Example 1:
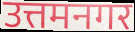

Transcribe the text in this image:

उत्तमनगर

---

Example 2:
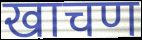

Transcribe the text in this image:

खाचण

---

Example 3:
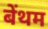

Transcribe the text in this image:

बेंथम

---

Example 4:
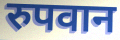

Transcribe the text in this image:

रुपवान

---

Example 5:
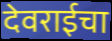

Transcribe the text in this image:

देवराईचा